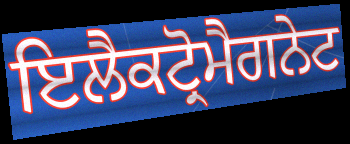
ਇਲੈਕਟ੍ਰੋਮੈਗਨੇਟ